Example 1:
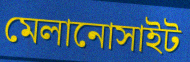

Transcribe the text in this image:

মেলানোসাইট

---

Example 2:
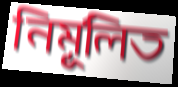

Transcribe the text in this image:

নির্মূলিত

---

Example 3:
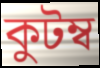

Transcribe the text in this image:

কুটম্ব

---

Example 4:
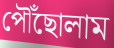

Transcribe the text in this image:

পৌঁছোলাম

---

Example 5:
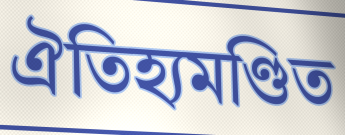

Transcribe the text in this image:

ঐতিহ্যমণ্ডিত